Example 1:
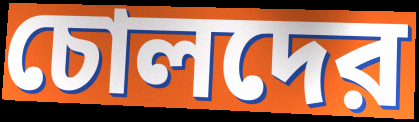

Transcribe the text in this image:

চোলদের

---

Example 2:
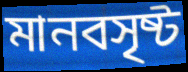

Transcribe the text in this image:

মানবসৃষ্ট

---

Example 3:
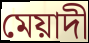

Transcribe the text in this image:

মেয়াদী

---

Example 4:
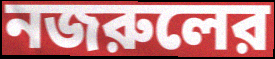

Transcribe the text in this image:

নজরুলের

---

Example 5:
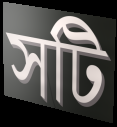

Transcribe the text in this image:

সটি